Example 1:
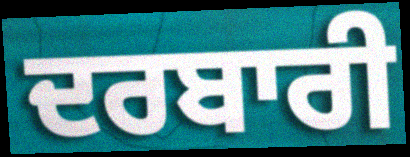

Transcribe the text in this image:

ਦਰਬਾਰੀ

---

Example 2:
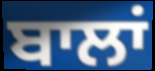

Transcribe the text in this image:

ਬਾਲਾਂ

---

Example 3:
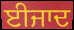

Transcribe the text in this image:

ਈਜਾਦ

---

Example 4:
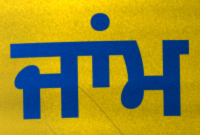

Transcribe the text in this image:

ਜਾਂਮ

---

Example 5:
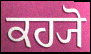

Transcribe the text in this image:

ਕਹ੍ਯੋ